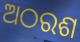
ଅଠରଶ